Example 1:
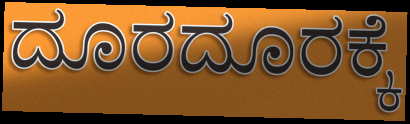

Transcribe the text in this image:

ದೂರದೂರಕ್ಕೆ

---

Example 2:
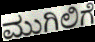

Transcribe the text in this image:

ಮುಗಿಲಿಗೆ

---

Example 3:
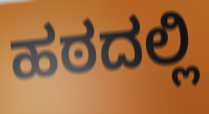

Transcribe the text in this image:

ಹಠದಲ್ಲಿ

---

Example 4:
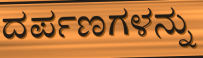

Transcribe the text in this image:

ದರ್ಪಣಗಳನ್ನು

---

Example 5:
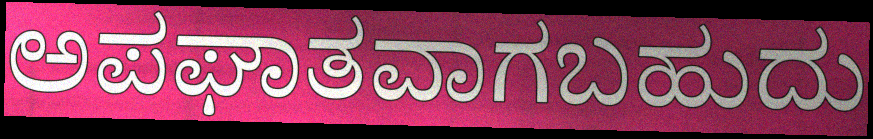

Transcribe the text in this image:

ಅಪಘಾತವಾಗಬಹುದು